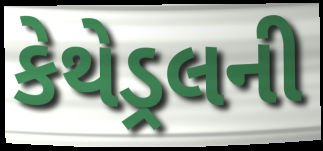
કેથેડ્રલની